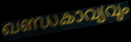
ഖണ്ഡകാവ്യവും